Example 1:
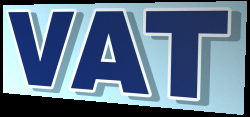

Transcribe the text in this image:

VAT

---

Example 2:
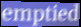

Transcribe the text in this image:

emptied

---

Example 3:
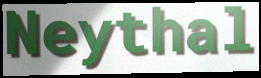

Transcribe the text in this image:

Neythal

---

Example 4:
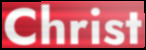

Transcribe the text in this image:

Christ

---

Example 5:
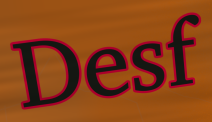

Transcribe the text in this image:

Desf